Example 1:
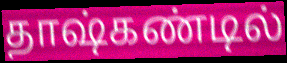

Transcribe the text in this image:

தாஷ்கண்டில்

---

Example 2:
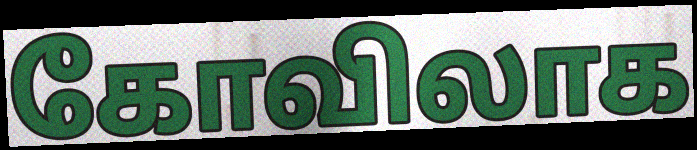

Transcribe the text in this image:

கோவிலாக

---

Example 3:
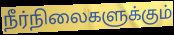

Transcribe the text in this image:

நீர்நிலைகளுக்கும்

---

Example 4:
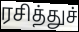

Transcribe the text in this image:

ரசித்துச்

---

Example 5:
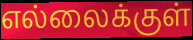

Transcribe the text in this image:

எல்லைக்குள்